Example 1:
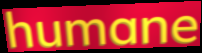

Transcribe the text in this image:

humane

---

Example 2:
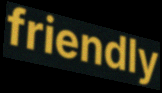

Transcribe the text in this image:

friendly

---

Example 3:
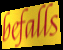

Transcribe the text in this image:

befalls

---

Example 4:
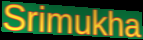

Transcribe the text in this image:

Srimukha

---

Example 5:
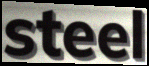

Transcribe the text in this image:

steel